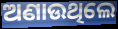
ଅଣାଉଥିଲେ